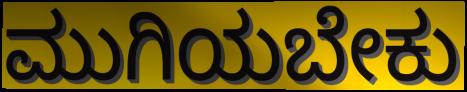
ಮುಗಿಯಬೇಕು